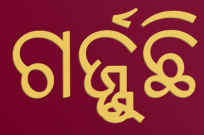
ଗର୍ଜ୍ଜୁଛି